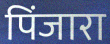
पिंजारा